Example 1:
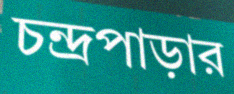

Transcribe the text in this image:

চন্দ্রপাড়ার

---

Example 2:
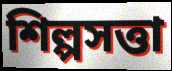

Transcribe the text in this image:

শিল্পসত্তা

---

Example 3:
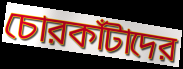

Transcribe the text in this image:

চোরকাঁটাদের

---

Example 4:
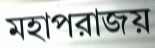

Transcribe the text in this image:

মহাপরাজয়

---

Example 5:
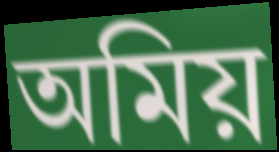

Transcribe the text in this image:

অমিয়